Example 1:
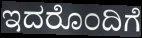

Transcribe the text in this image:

ಇದರೊಂದಿಗೆ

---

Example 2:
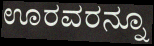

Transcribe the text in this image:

ಊರವರನ್ನೂ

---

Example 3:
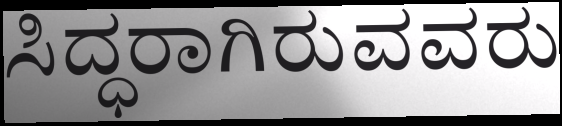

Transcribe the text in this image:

ಸಿದ್ಧರಾಗಿರುವವರು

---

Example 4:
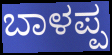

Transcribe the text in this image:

ಬಾಳಪ್ಪ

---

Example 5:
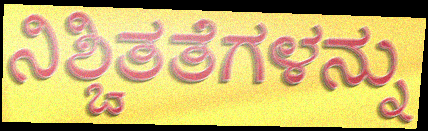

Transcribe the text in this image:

ನಿಶ್ಚಿತತೆಗಳನ್ನು